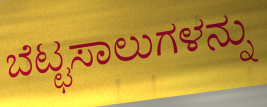
ಬೆಟ್ಟಸಾಲುಗಳನ್ನು